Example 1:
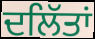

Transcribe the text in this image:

ਦਲਿੱਤਾਂ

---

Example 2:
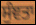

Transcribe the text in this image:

ਸੁੰਞਤਾ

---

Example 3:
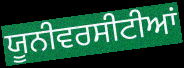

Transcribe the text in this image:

ਯੂਨੀਵਰਸੀਟੀਆਂ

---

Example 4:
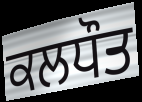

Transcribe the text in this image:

ਕਲਧੌਤ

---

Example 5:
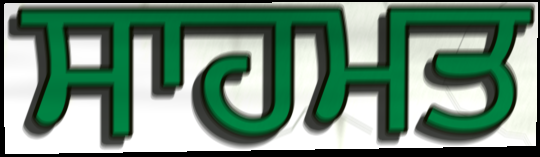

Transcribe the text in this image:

ਸਾਹਮਤ